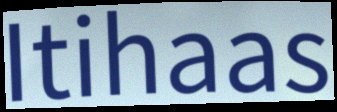
Itihaas